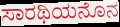
ಸಾರಥಿಯನೊನ